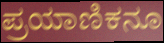
ಪ್ರಯಾಣಿಕನೂ